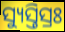
ସ୍ୟୁସ୍ତିସ୍ରଃ